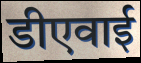
डीएवाई